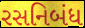
રસનિબંધ